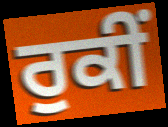
ਰੁਕੀਂ